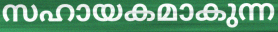
സഹായകമാകുന്ന